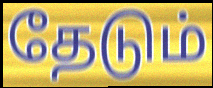
தேடும்